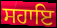
ਸਹਾਇ